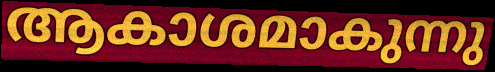
ആകാശമാകുന്നു